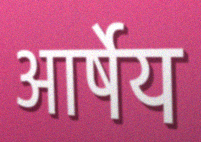
आर्षेय